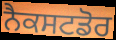
ਨੈਕਸਟਡੋਰ